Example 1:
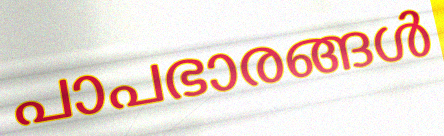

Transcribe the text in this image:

പാപഭാരങ്ങൾ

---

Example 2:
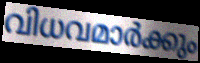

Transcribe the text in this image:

വിധവമാർക്കും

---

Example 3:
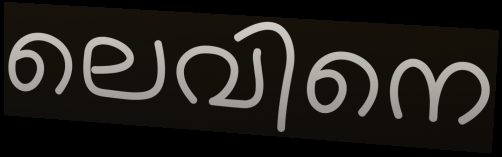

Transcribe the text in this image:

ലെവിനെ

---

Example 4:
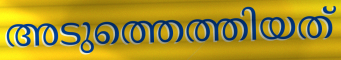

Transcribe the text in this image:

അടുത്തെത്തിയത്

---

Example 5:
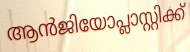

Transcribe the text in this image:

ആൻജിയോപ്ലാസ്റ്റിക്ക്